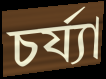
চর্য্যা